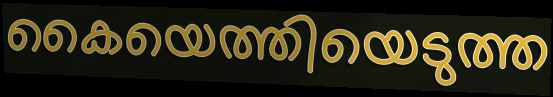
കൈയെത്തിയെടുത്ത